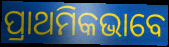
ପ୍ରାଥମିକଭାବେ